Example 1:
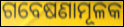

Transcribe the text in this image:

ଗବେଷଣାମୂଳକ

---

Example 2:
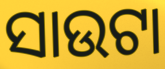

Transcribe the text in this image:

ସାଉଟା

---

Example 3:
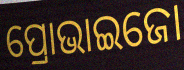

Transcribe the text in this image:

ପ୍ରୋଭାଇଜୋ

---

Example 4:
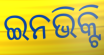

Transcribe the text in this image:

ଇନଭିକ୍ଟି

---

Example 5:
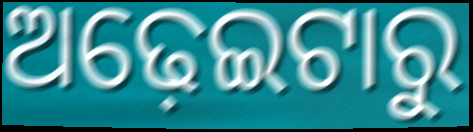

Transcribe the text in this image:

ଅଢ଼େଇଟାରୁ